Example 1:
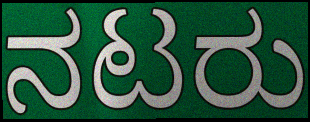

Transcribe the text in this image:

ನಟರು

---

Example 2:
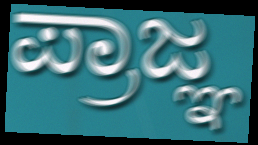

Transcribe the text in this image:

ಪ್ರಾಜ್ಞ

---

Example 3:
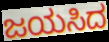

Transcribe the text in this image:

ಜಯಸಿದ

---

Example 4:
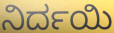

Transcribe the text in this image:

ನಿರ್ದಯಿ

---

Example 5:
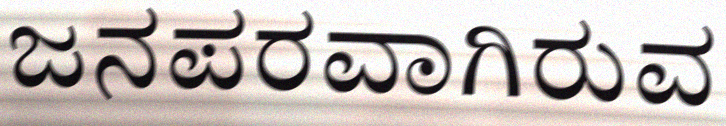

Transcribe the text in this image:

ಜನಪರವಾಗಿರುವ